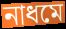
নাধমে